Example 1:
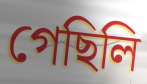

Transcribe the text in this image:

গেছিলি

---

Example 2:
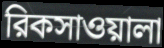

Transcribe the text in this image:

রিকসাওয়ালা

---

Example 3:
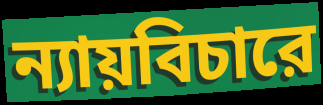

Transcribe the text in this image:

ন্যায়বিচারে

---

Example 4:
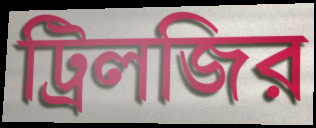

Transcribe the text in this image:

ট্রিলজির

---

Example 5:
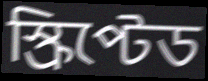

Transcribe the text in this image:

স্ক্রিপ্টেড